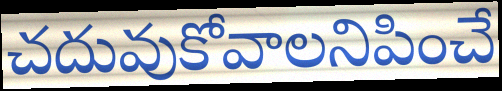
చదువుకోవాలనిపించే